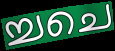
ച്ചചെ